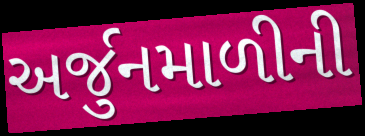
અર્જુનમાળીની